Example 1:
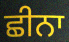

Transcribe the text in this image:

ਛੀਨਾ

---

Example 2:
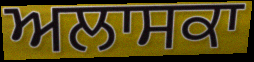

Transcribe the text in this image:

ਅਲਾਸਕਾ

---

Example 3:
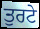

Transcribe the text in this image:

ਤੁਰਟੇ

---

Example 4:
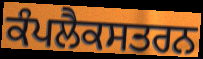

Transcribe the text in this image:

ਕੰਪਲੈਕਸਤਰਨ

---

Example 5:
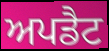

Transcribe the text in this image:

ਅਪਡੈਟ